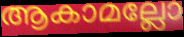
ആകാമല്ലോ